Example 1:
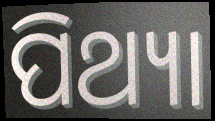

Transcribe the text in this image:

ପିଥ୍ୟା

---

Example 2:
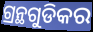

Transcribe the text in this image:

ଗ୍ରନ୍ଥଗୁଡିକର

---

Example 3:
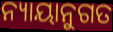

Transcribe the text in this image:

ନ୍ୟାୟାନୁଗତ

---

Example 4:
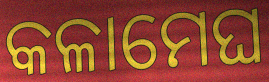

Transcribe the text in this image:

କଳାମେଘ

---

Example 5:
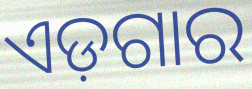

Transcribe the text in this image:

ଏଡ଼ଗାର